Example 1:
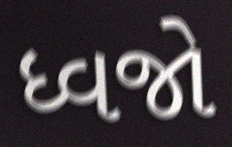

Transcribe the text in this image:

ધ્વજો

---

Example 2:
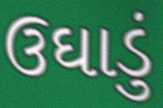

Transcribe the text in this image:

ઉઘાડું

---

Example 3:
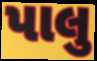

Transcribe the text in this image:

પાલુ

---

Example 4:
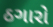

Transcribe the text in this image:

ઠગારો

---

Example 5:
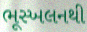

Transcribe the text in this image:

ભૂસ્ખલનથી